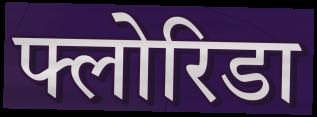
फ्लोरिडा